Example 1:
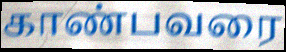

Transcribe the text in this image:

காண்பவரை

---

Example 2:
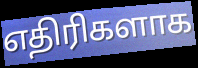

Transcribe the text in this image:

எதிரிகளாக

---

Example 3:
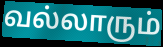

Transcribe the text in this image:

வல்லாரும்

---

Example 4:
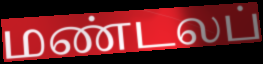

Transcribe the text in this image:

மண்டலப்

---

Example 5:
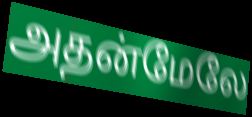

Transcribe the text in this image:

அதன்மேலே